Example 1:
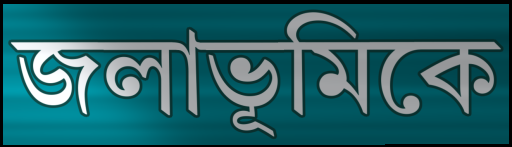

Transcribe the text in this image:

জলাভূমিকে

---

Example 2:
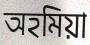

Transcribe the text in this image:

অহমিয়া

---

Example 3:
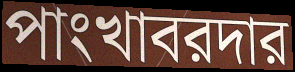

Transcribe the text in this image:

পাংখাবরদার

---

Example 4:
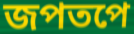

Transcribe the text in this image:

জপতপে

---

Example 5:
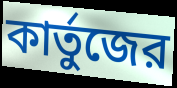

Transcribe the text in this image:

কার্তুজের